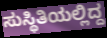
ಸುಸ್ಥಿತಿಯಲ್ಲಿದ್ದ